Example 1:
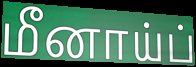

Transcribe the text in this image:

மீனாய்ப்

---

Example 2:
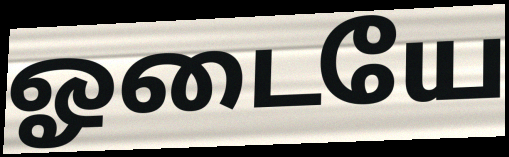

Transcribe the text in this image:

ஓடையே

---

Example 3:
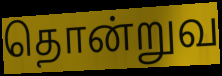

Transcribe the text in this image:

தொன்றுவ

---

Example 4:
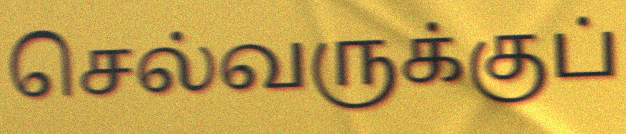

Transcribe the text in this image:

செல்வருக்குப்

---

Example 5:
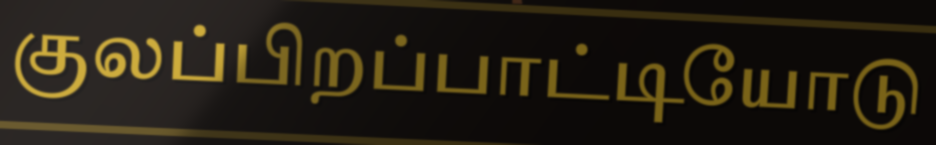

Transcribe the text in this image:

குலப்பிறப்பாட்டியோடு